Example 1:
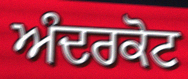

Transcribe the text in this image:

ਅੰਦਰਕੋਟ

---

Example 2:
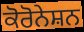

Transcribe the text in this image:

ਕੋਰੋਨੇਸ਼ਨ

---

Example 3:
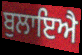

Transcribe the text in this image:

ਬੁਲਾਇਐ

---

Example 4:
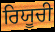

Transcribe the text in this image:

ਰਿਯੂਚੀ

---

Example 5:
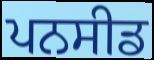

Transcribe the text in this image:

ਪਨਸੀਡ